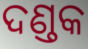
ଦଣ୍ଡକ